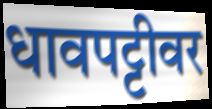
धावपट्टीवर